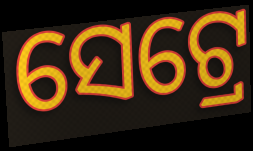
ସେଟ୍ରେ